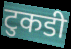
टुकडी